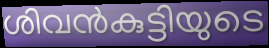
ശിവൻകുട്ടിയുടെ